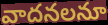
వాదనలనూ